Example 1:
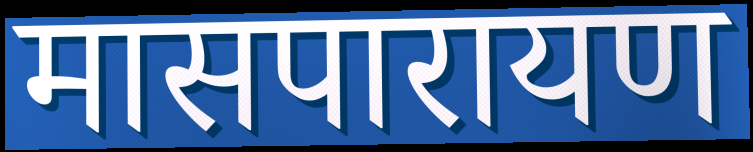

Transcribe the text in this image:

मासपारायण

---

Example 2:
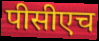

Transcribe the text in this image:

पीसीएच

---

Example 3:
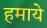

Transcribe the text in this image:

हमाये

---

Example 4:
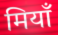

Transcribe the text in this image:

मियाँ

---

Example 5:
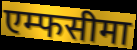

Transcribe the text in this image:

एम्फसीमा